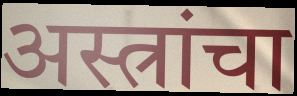
अस्त्रांचा